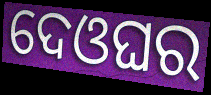
ଦେଓଘର